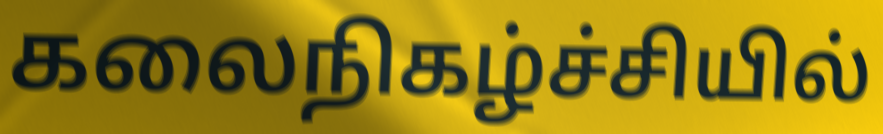
கலைநிகழ்ச்சியில்